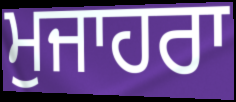
ਮੁਜਾਹਰਾ